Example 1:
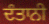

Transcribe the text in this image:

ਦੰਤਾਨੀ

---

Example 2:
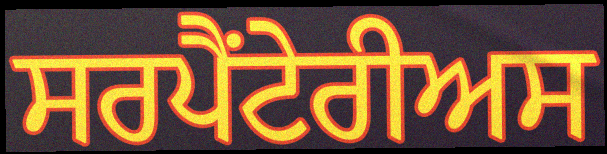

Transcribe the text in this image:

ਸਰਪੈਂਟੇਰੀਅਸ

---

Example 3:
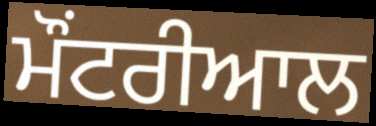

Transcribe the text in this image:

ਮੌਂਟਰੀਆਲ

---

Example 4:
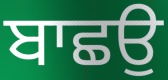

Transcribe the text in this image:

ਬਾਛਉ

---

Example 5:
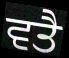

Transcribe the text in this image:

ਵਤੈ